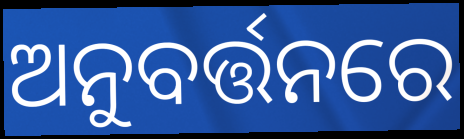
ଅନୁବର୍ତ୍ତନରେ